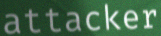
attacker